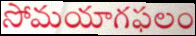
సోమయాగఫలం